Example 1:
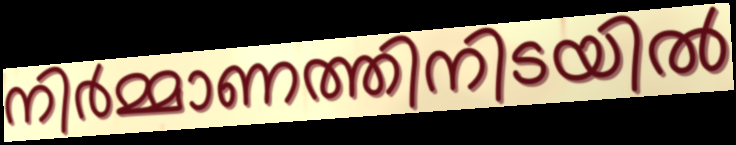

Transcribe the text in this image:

നിർമ്മാണത്തിനിടയിൽ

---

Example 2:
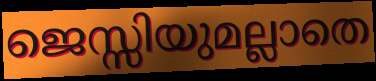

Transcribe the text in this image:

ജെസ്സിയുമല്ലാതെ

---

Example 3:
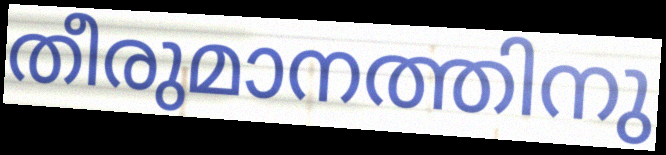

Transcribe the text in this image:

തീരുമാനത്തിനു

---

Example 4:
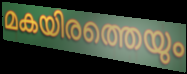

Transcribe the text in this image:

മകയിരത്തെയും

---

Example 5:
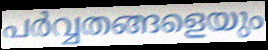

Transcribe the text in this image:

പർവ്വതങ്ങളെയും